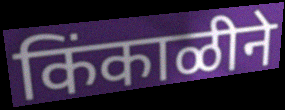
किंकाळीने